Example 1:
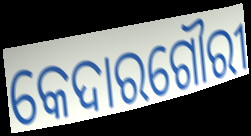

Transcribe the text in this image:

କେଦାରଗୌରୀ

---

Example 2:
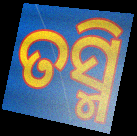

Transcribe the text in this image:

ତସ୍ମି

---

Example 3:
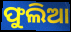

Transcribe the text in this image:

ଫୁଲିଆ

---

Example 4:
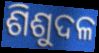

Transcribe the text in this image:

ଶିଶୁଦଳ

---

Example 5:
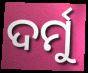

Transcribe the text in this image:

ଦର୍ମୁ